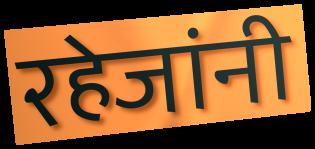
रहेजांनी